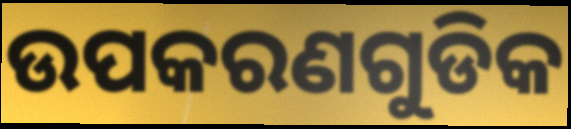
ଉପକରଣଗୁଡିକ